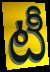
టీ